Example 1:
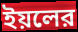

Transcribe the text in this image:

ইয়লের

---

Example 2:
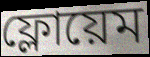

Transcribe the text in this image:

ফ্লোয়েম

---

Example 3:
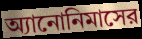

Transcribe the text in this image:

অ্যানোনিমাসের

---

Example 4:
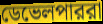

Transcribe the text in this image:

ডেভেলপাররা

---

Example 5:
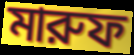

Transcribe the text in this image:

মারুফ